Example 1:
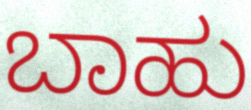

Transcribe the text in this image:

ಬಾಹು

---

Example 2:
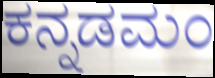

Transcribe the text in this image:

ಕನ್ನಡಮಂ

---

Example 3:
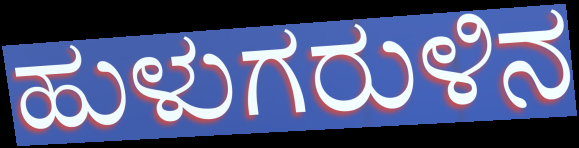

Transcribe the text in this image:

ಹುಳುಗರುಳಿನ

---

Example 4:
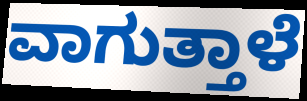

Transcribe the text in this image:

ವಾಗುತ್ತಾಳೆ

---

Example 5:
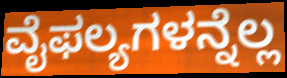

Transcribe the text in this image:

ವೈಫಲ್ಯಗಳನ್ನೆಲ್ಲ